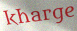
kharge